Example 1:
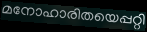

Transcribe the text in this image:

മനോഹാരിതയെപ്പറ്റി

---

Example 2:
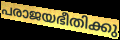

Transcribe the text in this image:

പരാജയഭീതിക്കു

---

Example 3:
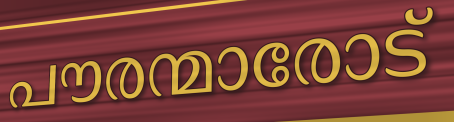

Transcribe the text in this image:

പൗരന്മാരോട്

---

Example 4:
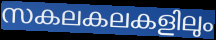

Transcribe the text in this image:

സകലകലകളിലും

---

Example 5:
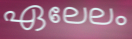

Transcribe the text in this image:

ഏലേലം